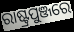
ରାଷ୍ଟ୍ରପୁଞ୍ଜରେ